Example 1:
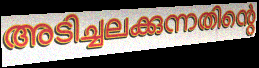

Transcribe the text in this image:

അടിച്ചലക്കുന്നതിന്റെ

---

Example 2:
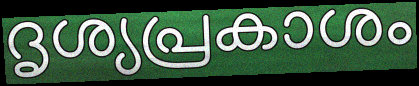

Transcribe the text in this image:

ദൃശ്യപ്രകാശം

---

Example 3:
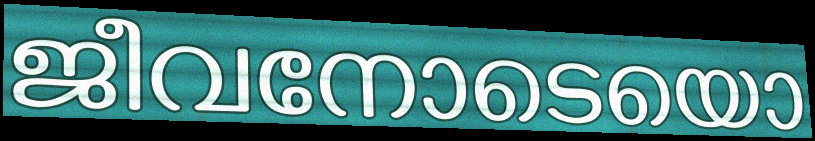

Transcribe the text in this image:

ജീവനോടെയൊ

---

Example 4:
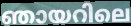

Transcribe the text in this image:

ഞായറിലെ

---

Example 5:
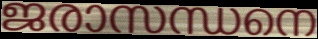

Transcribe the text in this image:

ജരാസന്ധനെ